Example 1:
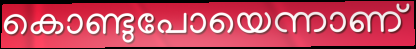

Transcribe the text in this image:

കൊണ്ടുപോയെന്നാണ്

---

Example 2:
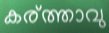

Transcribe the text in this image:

കര്ത്താവു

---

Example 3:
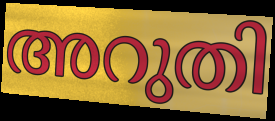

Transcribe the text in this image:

അറുതി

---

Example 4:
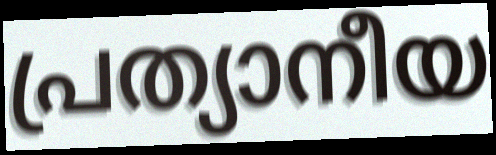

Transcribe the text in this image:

പ്രത്യാനീയ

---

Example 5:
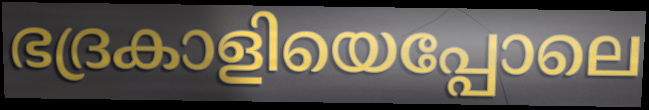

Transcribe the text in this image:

ഭദ്രകാളിയെപ്പോലെ